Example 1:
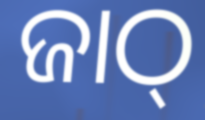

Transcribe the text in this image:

ଜାଠ୍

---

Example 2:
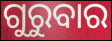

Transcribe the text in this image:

ଗୁରୁବାର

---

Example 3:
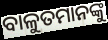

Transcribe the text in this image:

ବାଳୁତମାନଙ୍କୁ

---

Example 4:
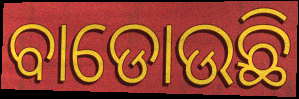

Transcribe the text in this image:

ବାଡୋଉଛି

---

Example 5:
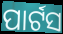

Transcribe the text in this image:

ପାର୍ଟସ